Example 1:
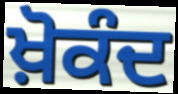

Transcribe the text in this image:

ਖ਼ੋਕੰਦ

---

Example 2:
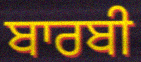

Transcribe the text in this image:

ਬਾਰਬੀ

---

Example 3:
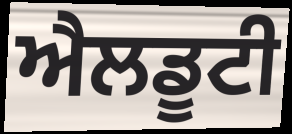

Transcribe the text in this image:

ਐਲਡੂਟੀ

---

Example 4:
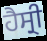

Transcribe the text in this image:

ਹੈਸ੍ਰੀ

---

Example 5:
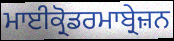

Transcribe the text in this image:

ਮਾਈਕ੍ਰੋਡਰਮਾਬ੍ਰੇਜ਼ਨ